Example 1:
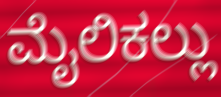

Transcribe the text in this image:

ಮೈಲಿಕಲ್ಲು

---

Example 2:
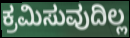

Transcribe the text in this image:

ಕ್ರಮಿಸುವುದಿಲ್ಲ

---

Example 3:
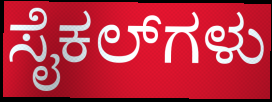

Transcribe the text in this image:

ಸೈಕಲ್‌ಗಳು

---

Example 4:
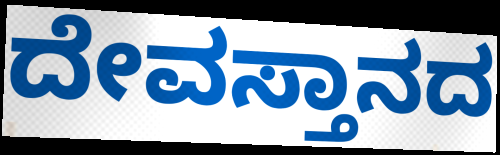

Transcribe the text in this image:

ದೇವಸ್ತಾನದ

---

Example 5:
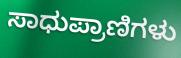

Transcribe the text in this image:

ಸಾಧುಪ್ರಾಣಿಗಳು